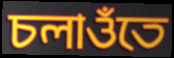
চলাওঁতে